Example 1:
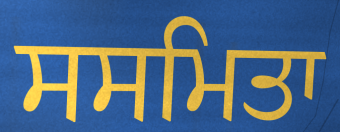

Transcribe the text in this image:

ਸਸਮਿਤਾ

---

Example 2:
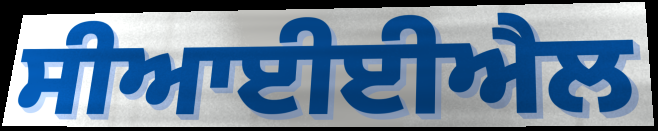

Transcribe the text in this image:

ਸੀਆਈਈਐਲ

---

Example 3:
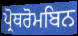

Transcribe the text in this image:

ਪ੍ਰੋਥਰੋਮਬਿਨ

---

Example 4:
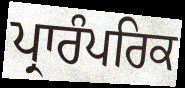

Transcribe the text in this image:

ਪ੍ਰਾਰੰਪਰਿਕ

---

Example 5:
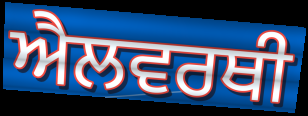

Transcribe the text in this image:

ਐਲਵਰਥੀ